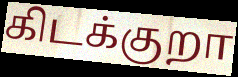
கிடக்குறா